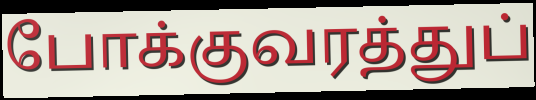
போக்குவரத்துப்